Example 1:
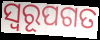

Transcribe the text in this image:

ସ୍ଵରୂପଗତ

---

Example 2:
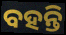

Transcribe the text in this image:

ବହନ୍ତି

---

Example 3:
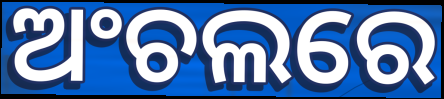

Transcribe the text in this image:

ଅଂଚଲରେ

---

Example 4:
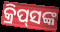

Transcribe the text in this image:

କ୍ରିପ୍‌ସଙ୍କ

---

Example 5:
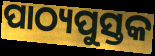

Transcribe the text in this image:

ପାଠ୍ୟପୁସ୍ତକ